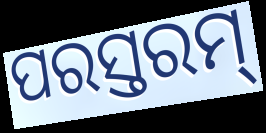
ପରସ୍ତରମ୍